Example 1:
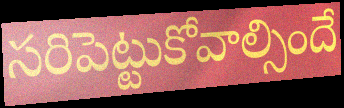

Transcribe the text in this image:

సరిపెట్టుకోవాల్సిందే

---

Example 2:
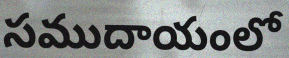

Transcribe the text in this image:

సముదాయంలో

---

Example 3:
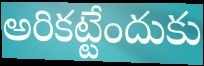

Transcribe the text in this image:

అరికట్టేందుకు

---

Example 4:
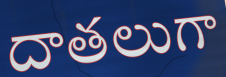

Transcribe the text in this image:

దాతలుగా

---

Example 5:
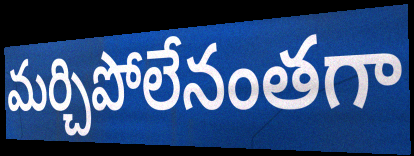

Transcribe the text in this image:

మర్చిపోలేనంతగా